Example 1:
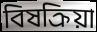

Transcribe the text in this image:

বিষক্ৰিয়া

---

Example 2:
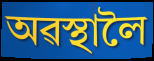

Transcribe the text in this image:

অৱস্থালৈ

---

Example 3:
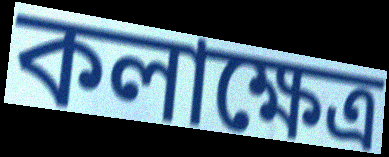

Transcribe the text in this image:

কলাক্ষেত্ৰ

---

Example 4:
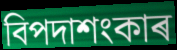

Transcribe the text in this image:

বিপদাশংকাৰ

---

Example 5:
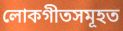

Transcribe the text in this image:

লোকগীতসমূহত